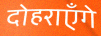
दोहराएँगे